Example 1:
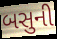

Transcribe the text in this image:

બસુની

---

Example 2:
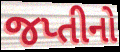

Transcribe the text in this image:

જપ્તીનો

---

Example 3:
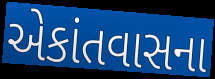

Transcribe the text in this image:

એકાંતવાસના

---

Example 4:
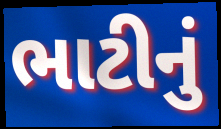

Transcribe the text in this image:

ભાટીનું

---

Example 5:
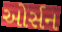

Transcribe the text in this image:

ઓર્સન